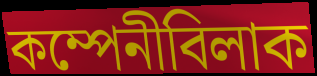
কম্পেনীবিলাক